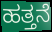
ಹತ್ತನೆ